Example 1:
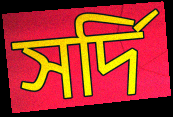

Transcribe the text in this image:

সর্দি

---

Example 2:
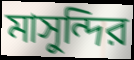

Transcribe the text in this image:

মাসুন্দির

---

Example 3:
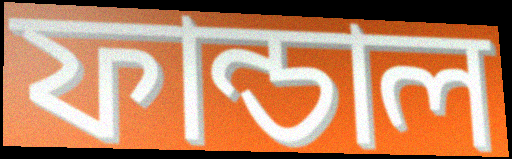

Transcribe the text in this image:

ফান্ডাল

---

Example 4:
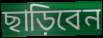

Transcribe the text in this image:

ছাড়িবেন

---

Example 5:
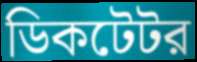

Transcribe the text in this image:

ডিকটেটর